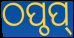
ଠପ୍ଠପ୍